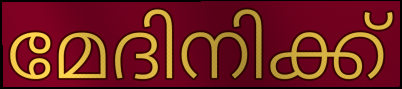
മേദിനിക്ക്